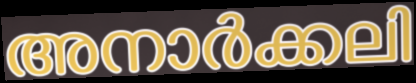
അനാർക്കലി